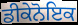
ਡੀਕੇਨੋਇਕ